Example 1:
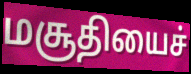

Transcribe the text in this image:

மசூதியைச்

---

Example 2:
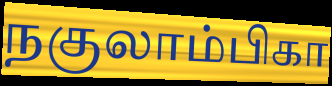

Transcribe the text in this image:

நகுலாம்பிகா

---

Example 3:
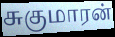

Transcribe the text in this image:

சுகுமாரன்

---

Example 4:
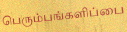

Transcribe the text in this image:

பெரும்பங்களிப்பை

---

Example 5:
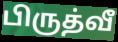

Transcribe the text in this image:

பிருத்வீ